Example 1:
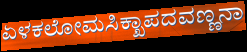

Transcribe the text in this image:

ಏಳಕಲೋಮಸಿಕ್ಖಾಪದವಣ್ಣನಾ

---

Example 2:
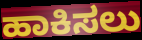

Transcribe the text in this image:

ಹಾಕಿಸಲು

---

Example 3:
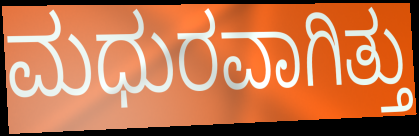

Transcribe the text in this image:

ಮಧುರವಾಗಿತ್ತು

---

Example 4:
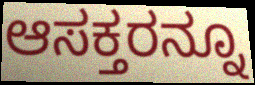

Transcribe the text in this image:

ಆಸಕ್ತರನ್ನೂ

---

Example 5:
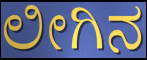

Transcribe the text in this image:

ಲೀಗಿನ